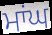
ਮਾਂਘ